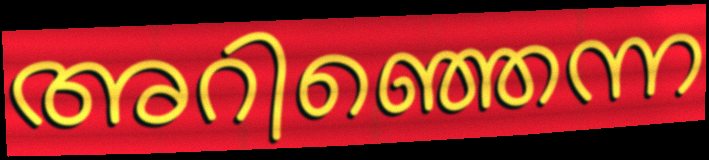
അറിഞ്ഞെന്ന